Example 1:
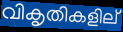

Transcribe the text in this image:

വികൃതികളില്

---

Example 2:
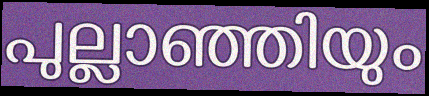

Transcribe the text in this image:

പുല്ലാഞ്ഞിയും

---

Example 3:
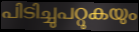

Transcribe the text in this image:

പിടിച്ചുപറ്റുകയും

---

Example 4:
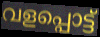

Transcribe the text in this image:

വളപ്പൊട്ട്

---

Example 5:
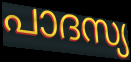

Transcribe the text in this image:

പാദസ്യ